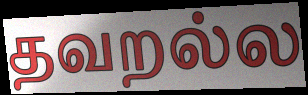
தவறல்ல